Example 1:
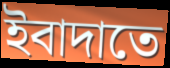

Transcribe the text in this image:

ইবাদাতে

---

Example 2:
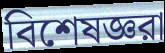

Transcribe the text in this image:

বিশেষজ্ঞরা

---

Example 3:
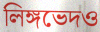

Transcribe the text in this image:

লিঙ্গভেদও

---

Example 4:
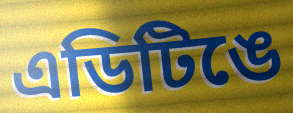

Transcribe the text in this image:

এডিটিঙে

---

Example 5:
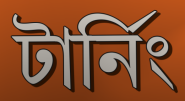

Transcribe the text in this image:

টার্নিং